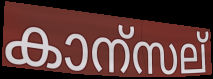
കാന്സല്